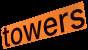
towers